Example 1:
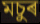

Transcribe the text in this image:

মচুৰ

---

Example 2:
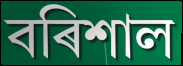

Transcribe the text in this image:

বৰিশাল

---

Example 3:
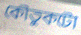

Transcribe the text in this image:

কৌতুকটো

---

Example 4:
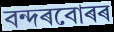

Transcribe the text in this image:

বন্দৰবোৰৰ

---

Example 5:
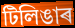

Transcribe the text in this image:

টিলিঙাৰ